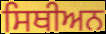
ਸਿਥੀਅਨ